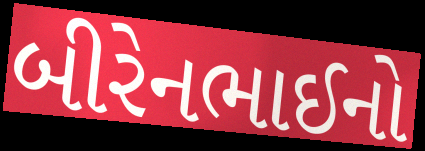
બીરેનભાઈનો